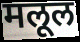
मलूल